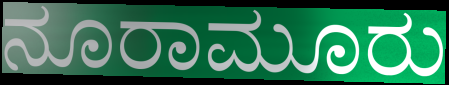
ನೂರಾಮೂರು